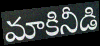
మాకినీడి